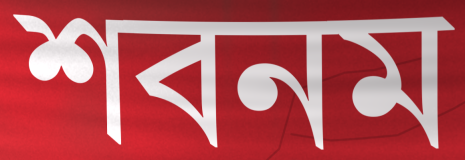
শবনম